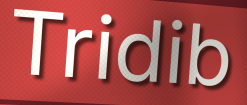
Tridib